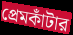
প্রেমকাঁটার